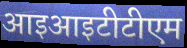
आइआइटीटीएम